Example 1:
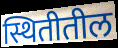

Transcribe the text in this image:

स्थितीतील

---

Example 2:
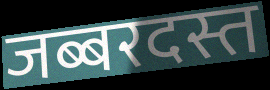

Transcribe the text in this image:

जब्बरदस्त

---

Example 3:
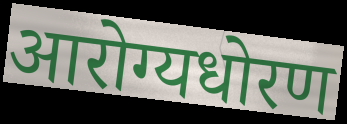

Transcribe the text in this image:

आरोग्यधोरण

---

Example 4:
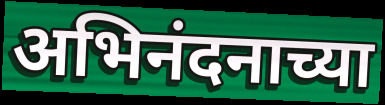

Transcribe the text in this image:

अभिनंदनाच्या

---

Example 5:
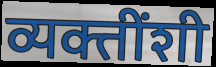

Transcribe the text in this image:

व्यक्तींशी